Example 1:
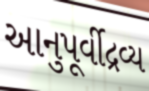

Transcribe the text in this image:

આનુપૂર્વીદ્રવ્ય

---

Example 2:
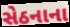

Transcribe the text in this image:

સેઠનાના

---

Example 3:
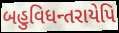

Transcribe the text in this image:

બહુવિધન્તરાયેપિ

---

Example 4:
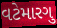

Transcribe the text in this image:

વટેમારગુ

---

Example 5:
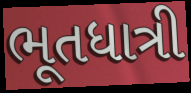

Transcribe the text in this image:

ભૂતધાત્રી